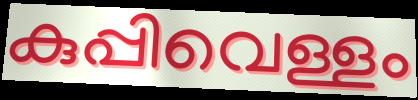
കുപ്പിവെള്ളം